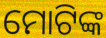
ମୋଟିଙ୍କ